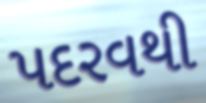
પદરવથી